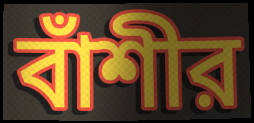
বাঁশীর